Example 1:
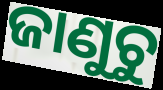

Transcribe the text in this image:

ଜାଣୁଚୁ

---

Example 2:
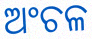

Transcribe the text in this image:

ଅଂଚଳ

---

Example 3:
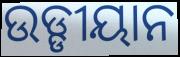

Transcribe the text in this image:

ଉଡ୍ଡୀୟାନ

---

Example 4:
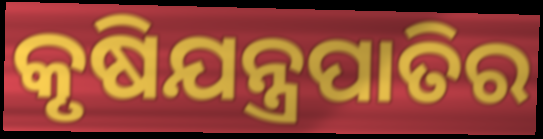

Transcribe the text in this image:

କୃଷିଯନ୍ତ୍ରପାତିର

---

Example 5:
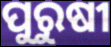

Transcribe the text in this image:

ପୁରୁଷୀ